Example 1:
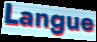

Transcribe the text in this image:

Langue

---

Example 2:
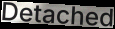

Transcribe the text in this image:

Detached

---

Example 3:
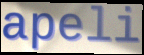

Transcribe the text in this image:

apeli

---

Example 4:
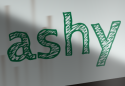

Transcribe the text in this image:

ashy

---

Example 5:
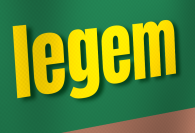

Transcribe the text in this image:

legem